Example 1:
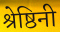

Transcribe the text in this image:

श्रेष्ठिनी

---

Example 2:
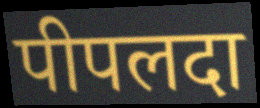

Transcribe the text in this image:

पीपलदा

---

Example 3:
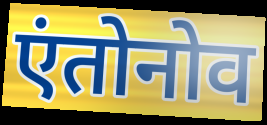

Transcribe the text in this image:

एंतोनोव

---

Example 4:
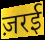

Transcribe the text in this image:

ज़रई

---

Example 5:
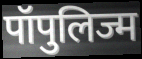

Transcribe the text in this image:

पॉपुलिज्म